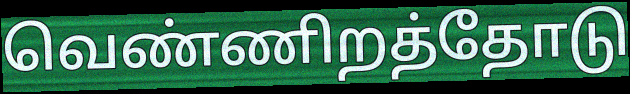
வெண்ணிறத்தோடு